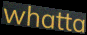
whatta